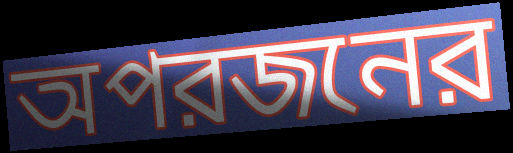
অপরজনের